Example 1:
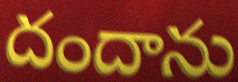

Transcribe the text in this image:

దందాను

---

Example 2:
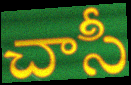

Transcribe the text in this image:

చాసీ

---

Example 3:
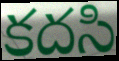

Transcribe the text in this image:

కదసి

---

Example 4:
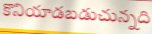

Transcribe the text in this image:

కొనియాడబడుచున్నది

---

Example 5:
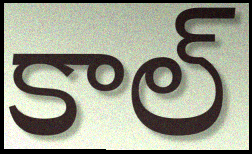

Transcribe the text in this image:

కాల్